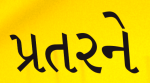
પ્રતરને